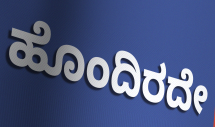
ಹೊಂದಿರದೇ